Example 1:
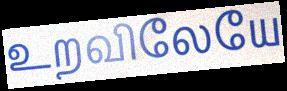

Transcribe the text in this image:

உறவிலேயே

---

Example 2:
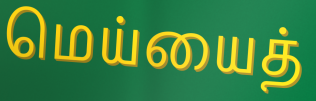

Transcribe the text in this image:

மெய்யைத்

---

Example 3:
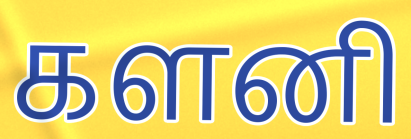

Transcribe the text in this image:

களனி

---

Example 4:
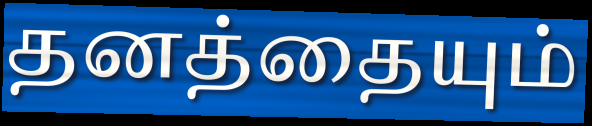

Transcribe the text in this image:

தனத்தையும்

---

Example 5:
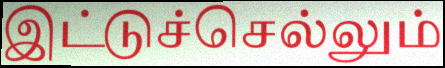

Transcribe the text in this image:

இட்டுச்செல்லும்